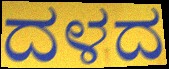
ದಳದ